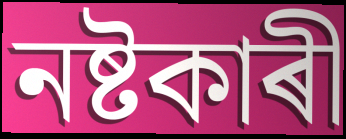
নষ্টকাৰী